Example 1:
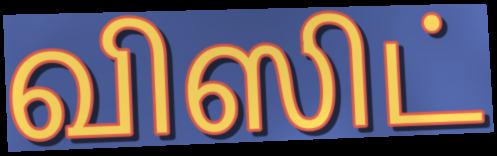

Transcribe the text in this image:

விஸிட்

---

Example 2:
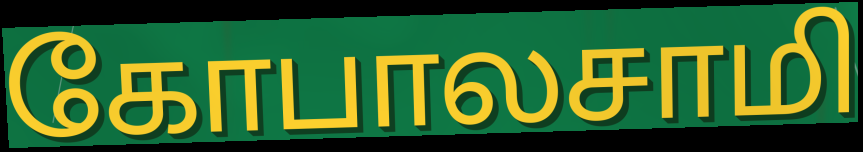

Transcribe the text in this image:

கோபாலசாமி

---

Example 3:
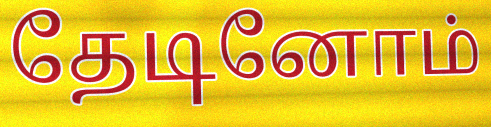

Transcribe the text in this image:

தேடினோம்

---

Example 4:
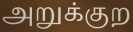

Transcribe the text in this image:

அறுக்குற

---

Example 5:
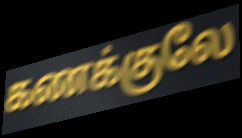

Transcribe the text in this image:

கணக்குலே